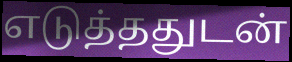
எடுத்ததுடன்